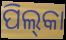
ପିଲ୍‌କା